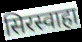
सिरस्वाहा